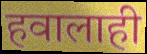
हवालाही